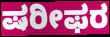
ಷರೀಫರ